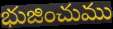
భుజించుము